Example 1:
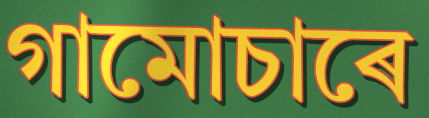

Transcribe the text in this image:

গামোচাৰে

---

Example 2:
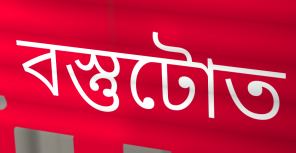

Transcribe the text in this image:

বস্তুটোত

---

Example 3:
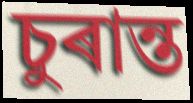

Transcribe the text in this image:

চুৰান্ত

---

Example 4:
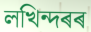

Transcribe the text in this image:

লখিন্দৰৰ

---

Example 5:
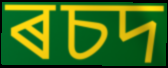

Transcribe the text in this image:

ৰচদ